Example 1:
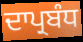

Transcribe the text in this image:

ਦਾਪ੍ਰਬੰਧ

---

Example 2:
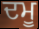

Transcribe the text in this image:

ਦਮੂ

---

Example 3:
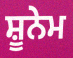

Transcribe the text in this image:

ਸ਼ੂਨੇਮ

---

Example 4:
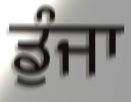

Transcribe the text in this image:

ਡੁੰਜਾ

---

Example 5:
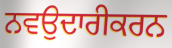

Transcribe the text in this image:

ਨਵਉਦਾਰੀਕਰਨ